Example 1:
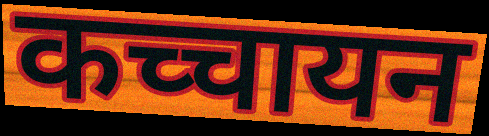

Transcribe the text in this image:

कच्चायन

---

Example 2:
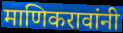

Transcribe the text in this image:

माणिकरावांनी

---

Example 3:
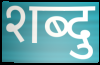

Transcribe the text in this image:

शब्दु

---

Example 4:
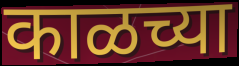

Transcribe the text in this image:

काळच्या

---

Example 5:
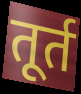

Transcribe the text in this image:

तूर्त